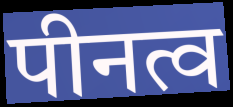
पीनत्व